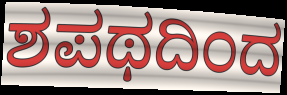
ಶಪಥದಿಂದ